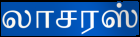
லாசரஸ்